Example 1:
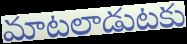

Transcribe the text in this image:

మాటలాడుటకు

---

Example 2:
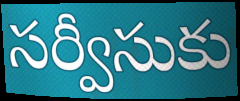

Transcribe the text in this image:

సర్వీసుకు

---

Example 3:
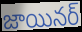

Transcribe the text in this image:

జాయినర్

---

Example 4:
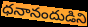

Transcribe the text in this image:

ధనానందుడిని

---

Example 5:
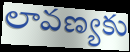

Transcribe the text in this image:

లావణ్యకు